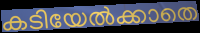
കടിയേൽക്കാതെ